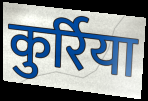
कुर्रिया